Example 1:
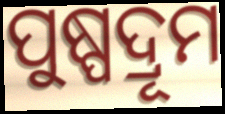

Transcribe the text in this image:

ପୁଷ୍ପଦ୍ରୂମ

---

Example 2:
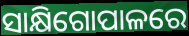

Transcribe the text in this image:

ସାକ୍ଷିଗୋପାଳରେ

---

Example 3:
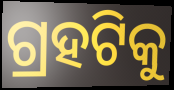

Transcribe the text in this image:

ଗ୍ରହଟିକୁ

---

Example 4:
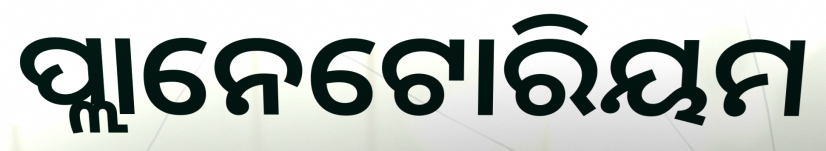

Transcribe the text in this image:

ପ୍ଲାନେଟୋରିୟମ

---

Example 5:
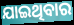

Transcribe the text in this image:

ଯାଇଥିବାର